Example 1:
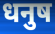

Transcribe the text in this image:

धनुष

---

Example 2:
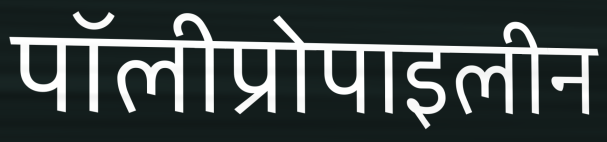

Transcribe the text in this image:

पॉलीप्रोपाइलीन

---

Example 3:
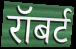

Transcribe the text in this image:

रॉबर्ट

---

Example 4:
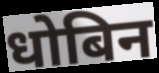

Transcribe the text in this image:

धोबिन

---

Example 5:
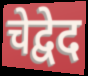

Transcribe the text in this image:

चेद्वेद